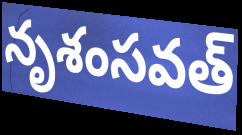
నృశంసవత్